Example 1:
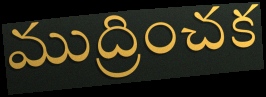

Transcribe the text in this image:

ముద్రించక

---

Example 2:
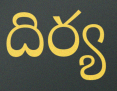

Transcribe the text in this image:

దిర్య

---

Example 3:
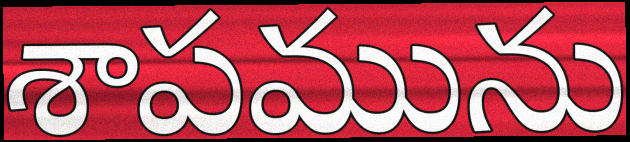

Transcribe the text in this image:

శాపమును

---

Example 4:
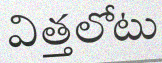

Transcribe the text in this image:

విత్తలోటు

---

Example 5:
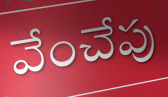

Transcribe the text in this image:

వేంచేపు